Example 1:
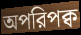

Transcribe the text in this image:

অপরিপক্ব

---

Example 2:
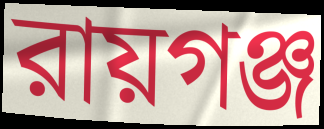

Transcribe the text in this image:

রায়গঞ্জ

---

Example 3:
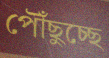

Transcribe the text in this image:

পৌঁছুচ্ছে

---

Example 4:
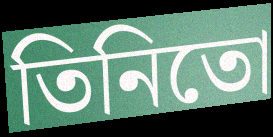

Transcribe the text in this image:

তিনিতো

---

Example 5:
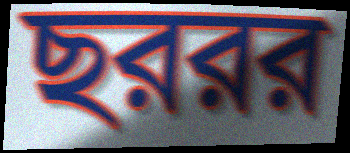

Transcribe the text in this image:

ছররর